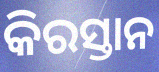
କିରସ୍ତାନ